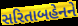
સરિતાબહેનને